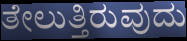
ತೇಲುತ್ತಿರುವುದು